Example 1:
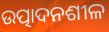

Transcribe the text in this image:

ଉତ୍ପାଦନଶୀଳ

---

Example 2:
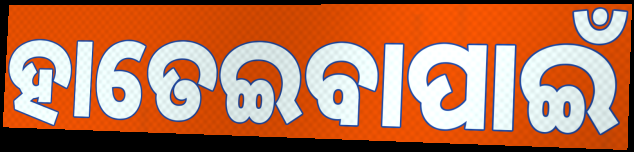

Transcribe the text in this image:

ହାତେଇବାପାଇଁ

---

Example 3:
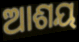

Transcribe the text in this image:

ଆଶୟ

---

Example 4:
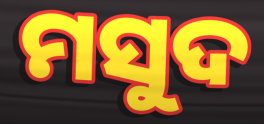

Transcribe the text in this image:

ମସୁଦ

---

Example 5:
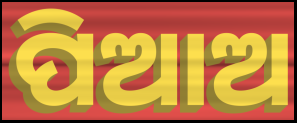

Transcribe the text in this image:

ପିଆଅ